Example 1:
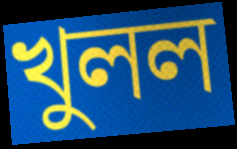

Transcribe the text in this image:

খুলল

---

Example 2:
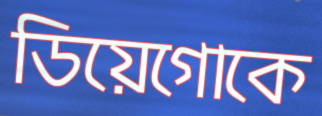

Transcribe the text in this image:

ডিয়েগোকে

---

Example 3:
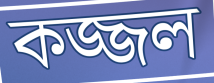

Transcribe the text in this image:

কজ্জল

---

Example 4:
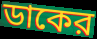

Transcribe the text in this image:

ডাকের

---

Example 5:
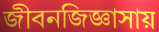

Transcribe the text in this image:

জীবনজিজ্ঞাসায়